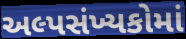
અલ્પસંખ્યકોમાં